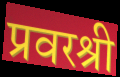
प्रवरश्री